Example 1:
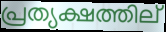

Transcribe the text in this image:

പ്രത്യക്ഷത്തില്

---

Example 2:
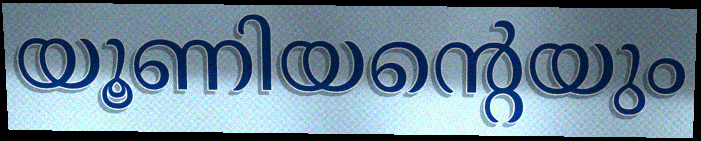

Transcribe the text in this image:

യൂണിയന്റെയും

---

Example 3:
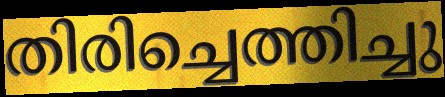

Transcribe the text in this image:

തിരിച്ചെത്തിച്ചു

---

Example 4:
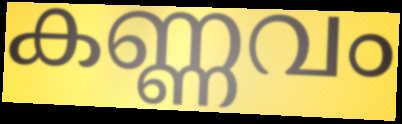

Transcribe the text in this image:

കണ്ണവം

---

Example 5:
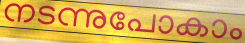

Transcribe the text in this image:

നടന്നുപോകാം